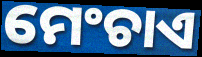
ମେଂଚାଏ